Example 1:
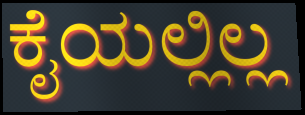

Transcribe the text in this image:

ಕೈಯಲ್ಲಿಲ್ಲ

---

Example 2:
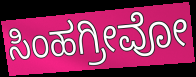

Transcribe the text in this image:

ಸಿಂಹಗ್ರೀವೋ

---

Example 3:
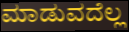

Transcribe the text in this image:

ಮಾಡುವದೆಲ್ಲ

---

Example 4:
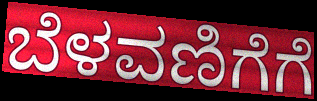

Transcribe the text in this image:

ಬೆಳವಣಿಗೆಗೆ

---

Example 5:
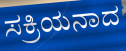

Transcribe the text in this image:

ಸಕ್ರಿಯನಾದ